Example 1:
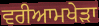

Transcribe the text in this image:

ਵਰੀਆਮਖੇੜਾ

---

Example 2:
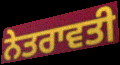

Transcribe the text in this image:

ਨੇਤਰਾਵਤੀ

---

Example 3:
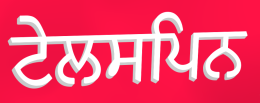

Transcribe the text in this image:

ਟੇਲਸਪਿਨ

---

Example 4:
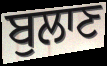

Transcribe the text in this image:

ਬੁਲਾਣ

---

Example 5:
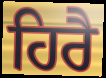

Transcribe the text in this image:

ਹਿਰੈ